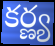
కర్ణ్య